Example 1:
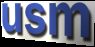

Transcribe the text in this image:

usm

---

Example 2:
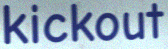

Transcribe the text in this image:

kickout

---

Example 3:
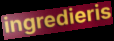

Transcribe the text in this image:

ingredieris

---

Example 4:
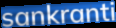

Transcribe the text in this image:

sankranti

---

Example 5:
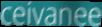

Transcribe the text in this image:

ceivanee